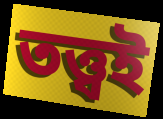
তত্ত্বই